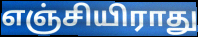
எஞ்சியிராது